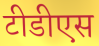
टीडीएस